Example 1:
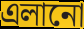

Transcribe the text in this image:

এলানো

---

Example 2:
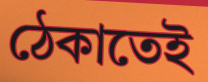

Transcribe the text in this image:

ঠেকাতেই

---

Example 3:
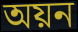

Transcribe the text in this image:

অয়ন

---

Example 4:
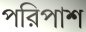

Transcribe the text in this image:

পরিপাশ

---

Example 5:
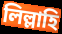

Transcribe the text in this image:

লিল্লাহি